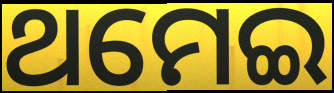
ଥମେଇ